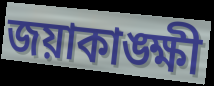
জয়াকাঙ্ক্ষী